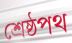
শ্রেষ্ঠপথ